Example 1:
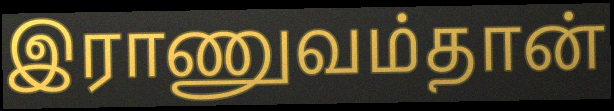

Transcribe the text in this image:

இராணுவம்தான்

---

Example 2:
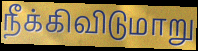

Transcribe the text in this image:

நீக்கிவிடுமாறு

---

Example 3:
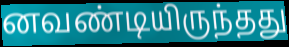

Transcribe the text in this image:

னவண்டியிருந்தது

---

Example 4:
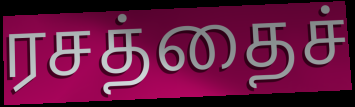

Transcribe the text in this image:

ரசத்தைச்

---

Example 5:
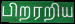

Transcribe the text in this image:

பிறரறிய